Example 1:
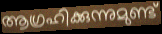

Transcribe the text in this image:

ആഗ്രഹിക്കുന്നുമുണ്ട്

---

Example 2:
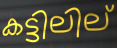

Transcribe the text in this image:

കട്ടിലില്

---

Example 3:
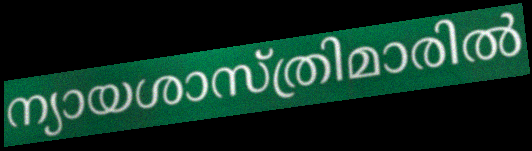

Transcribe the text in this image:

ന്യായശാസ്ത്രിമാരിൽ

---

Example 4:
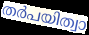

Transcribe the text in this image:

തർപയിത്വാ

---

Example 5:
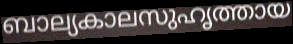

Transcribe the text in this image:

ബാല്യകാലസുഹൃത്തായ